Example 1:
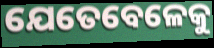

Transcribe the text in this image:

ଯେତେବେଳେକୁ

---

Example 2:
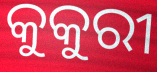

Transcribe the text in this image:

କୁକୁରୀ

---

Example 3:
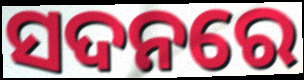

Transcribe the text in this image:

ସଦନରେ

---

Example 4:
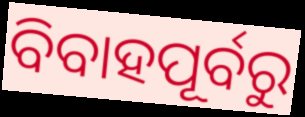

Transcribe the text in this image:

ବିବାହପୂର୍ବରୁ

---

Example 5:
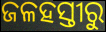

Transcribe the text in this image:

ଜଳହସ୍ତୀରୁ